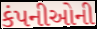
કંપનીઓની